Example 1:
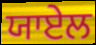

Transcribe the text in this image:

ਯਾਏਲ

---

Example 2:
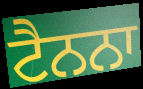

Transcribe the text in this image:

ਟੈਨਨਾ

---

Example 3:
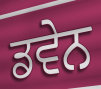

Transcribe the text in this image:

ਡਵੇਨ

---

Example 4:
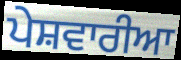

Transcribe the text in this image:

ਪੇਸ਼ਵਾਰੀਆ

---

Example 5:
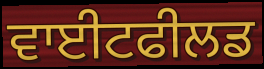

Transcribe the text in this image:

ਵਾਈਟਫੀਲਡ